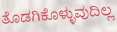
ತೊಡಗಿಕೊಳ್ಳುವುದಿಲ್ಲ